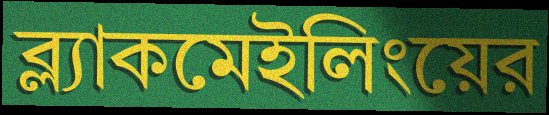
ব্ল্যাকমেইলিংয়ের